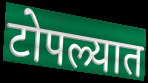
टोपल्यात